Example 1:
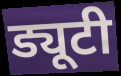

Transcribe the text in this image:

ड्यूटी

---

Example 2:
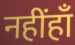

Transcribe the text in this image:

नहींहाँ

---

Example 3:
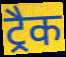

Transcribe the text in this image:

ट्रैक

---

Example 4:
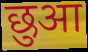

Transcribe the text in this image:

छुआ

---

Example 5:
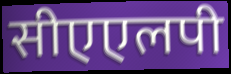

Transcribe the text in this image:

सीएएलपी